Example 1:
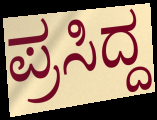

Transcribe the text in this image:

ಪ್ರಸಿದ್ದ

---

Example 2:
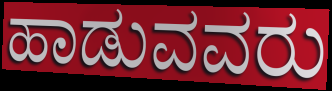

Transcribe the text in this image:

ಹಾಡುವವರು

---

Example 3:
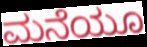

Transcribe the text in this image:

ಮನೆಯೂ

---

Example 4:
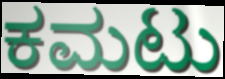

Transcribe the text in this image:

ಕಮಟು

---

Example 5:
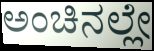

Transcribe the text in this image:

ಅಂಚಿನಲ್ಲೇ